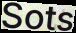
Sots